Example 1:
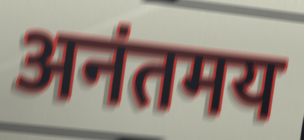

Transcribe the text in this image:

अनंतमय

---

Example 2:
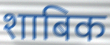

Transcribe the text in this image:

शाबिक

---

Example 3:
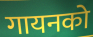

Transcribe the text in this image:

गायनको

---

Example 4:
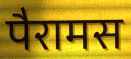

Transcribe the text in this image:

पैरामस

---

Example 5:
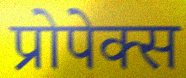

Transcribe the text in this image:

प्रोपेक्स